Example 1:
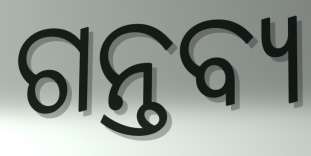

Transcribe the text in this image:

ଗନ୍ତବ୍ୟ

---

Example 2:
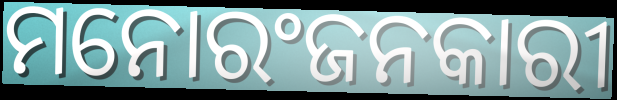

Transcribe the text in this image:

ମନୋରଂଜନକାରୀ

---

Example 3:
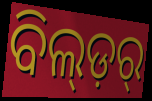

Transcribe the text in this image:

ବିଲ୍ଡ଼ର୍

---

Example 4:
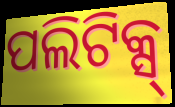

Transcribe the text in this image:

ପଲିଟିକ୍ସ୍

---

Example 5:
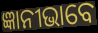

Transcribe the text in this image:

ଜ୍ଞାନୀଭାବେ